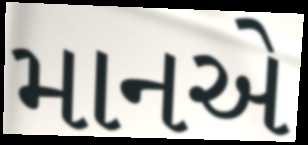
માનએ